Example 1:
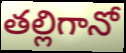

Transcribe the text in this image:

తల్లిగానో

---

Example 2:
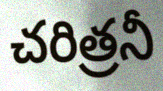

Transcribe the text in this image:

చరిత్రనీ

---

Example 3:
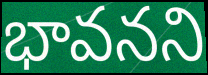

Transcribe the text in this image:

భావనని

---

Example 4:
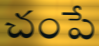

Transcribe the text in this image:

చంపే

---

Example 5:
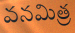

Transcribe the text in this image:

వనమిత్ర